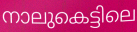
നാലുകെട്ടിലെ